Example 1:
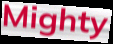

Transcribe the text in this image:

Mighty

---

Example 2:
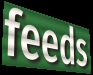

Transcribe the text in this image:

feeds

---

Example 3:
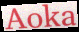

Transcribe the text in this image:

Aoka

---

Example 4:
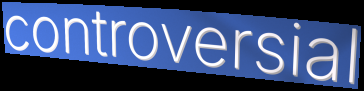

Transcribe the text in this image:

controversial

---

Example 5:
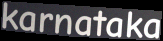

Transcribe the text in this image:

karnataka